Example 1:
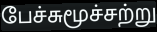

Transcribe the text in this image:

பேச்சுமூச்சற்று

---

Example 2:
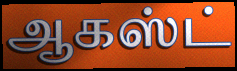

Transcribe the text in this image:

ஆகஸ்ட்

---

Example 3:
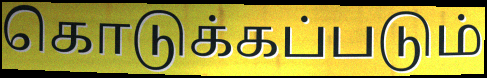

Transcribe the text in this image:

கொடுக்கப்படும்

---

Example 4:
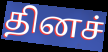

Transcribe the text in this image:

தினச்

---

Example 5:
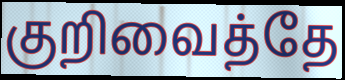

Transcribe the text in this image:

குறிவைத்தே